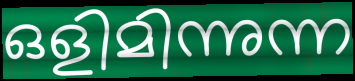
ഒളിമിന്നുന്ന